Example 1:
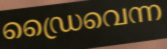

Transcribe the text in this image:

ഡ്രൈവെന്ന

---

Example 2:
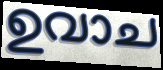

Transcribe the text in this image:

ഉവാച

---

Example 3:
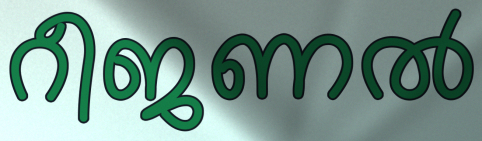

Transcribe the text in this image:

റീജണൽ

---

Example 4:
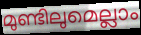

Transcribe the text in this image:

മുണ്ടിലുമെല്ലാം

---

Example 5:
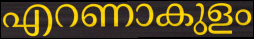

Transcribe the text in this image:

എറണാകുളം